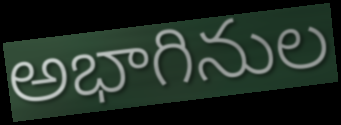
అభాగినుల